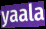
yaala